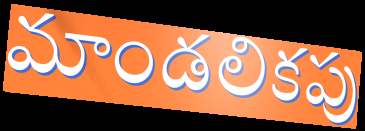
మాండలికపు